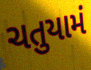
ચતુયામં